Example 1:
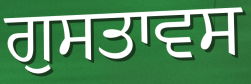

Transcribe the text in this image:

ਗੁਸਤਾਵਸ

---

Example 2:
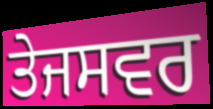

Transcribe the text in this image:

ਤੇਜਸਵਰ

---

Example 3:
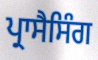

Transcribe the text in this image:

ਪ੍ਰਾਸੈਸਿੰਗ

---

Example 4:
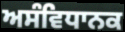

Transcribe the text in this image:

ਅਸੰਵਿਧਾਨਕ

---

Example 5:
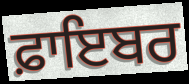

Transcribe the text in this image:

ਫ਼ਾਇਬਰ